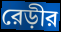
রেড়ীর